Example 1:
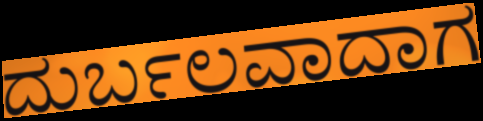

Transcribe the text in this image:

ದುರ್ಬಲವಾದಾಗ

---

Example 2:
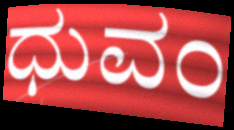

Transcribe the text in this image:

ಧುವಂ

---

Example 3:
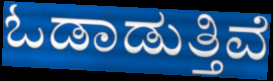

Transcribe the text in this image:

ಓಡಾಡುತ್ತಿವೆ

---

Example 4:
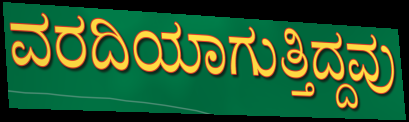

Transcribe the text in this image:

ವರದಿಯಾಗುತ್ತಿದ್ದವು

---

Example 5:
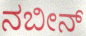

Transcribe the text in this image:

ನಬೀನ್